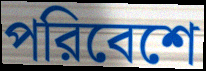
পরিবেশে